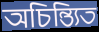
অচিন্ত্যিত